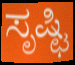
ಸೃಷ್ಟಿ